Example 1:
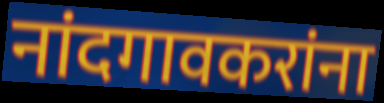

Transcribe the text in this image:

नांदगावकरांना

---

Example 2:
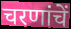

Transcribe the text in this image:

चरणांचें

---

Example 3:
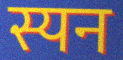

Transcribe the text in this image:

स्यन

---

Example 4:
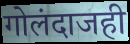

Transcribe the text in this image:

गोलंदाजही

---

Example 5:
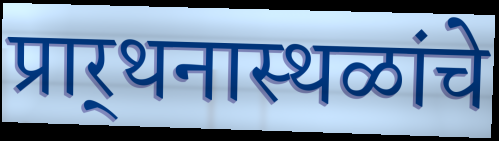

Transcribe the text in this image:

प्रार्थनास्थळांचे